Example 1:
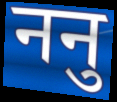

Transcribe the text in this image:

ननु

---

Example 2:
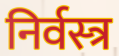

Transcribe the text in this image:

निर्वस्‍त्र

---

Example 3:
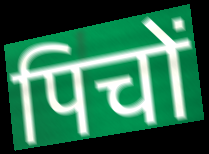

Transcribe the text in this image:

पिचों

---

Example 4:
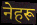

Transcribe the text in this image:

नेहरू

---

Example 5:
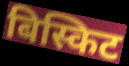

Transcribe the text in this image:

बिस्किट